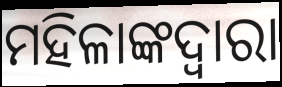
ମହିଳାଙ୍କଦ୍ୱାରା